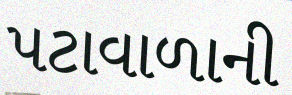
પટાવાળાની